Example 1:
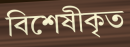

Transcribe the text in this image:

বিশেষীকৃত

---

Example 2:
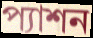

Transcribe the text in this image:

প্যাশন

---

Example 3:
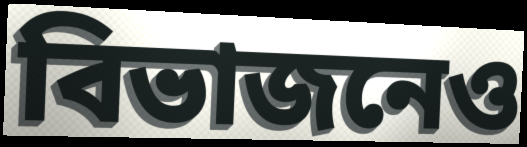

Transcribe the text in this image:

বিভাজনেও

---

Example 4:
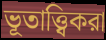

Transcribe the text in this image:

ভূতাত্ত্বিকরা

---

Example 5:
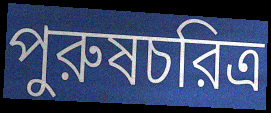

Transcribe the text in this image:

পুরুষচরিত্র